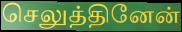
செலுத்தினேன்